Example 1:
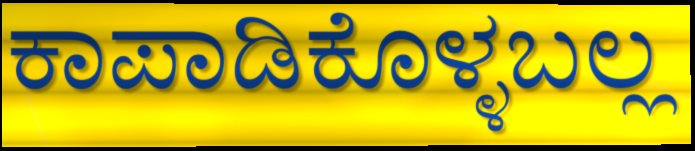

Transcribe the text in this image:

ಕಾಪಾಡಿಕೊಳ್ಳಬಲ್ಲ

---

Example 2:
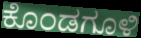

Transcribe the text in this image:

ಕೊಂಡಗೂಳಿ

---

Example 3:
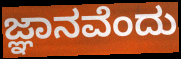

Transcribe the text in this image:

ಜ್ಞಾನವೆಂದು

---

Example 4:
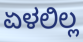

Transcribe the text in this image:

ಏಳಲಿಲ್ಲ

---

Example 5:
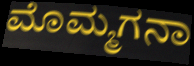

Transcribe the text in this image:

ಮೊಮ್ಮಗನಾ